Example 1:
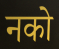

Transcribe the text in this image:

नको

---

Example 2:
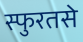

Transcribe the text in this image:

स्फुरतसे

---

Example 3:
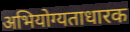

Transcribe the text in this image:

अभियोग्यताधारक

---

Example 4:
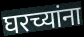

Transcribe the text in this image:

घरच्‍यांना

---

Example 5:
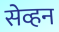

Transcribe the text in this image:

सेव्हन